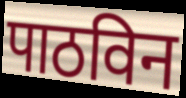
पाठविन